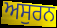
ਅਸੁਰਨ